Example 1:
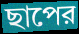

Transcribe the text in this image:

ছাপের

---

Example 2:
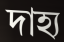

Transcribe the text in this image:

দাহ্য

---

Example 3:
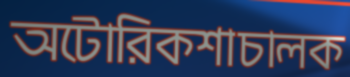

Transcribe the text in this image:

অটোরিকশাচালক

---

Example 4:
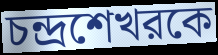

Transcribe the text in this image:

চন্দ্রশেখরকে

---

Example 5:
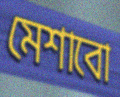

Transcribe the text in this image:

মেশাবো